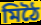
মিঠৈ